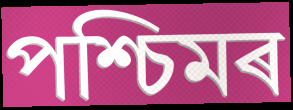
পশ্চিমৰ